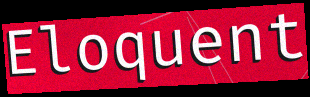
Eloquent